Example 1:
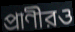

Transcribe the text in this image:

প্রাণীরও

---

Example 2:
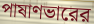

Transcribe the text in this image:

পাষাণভারের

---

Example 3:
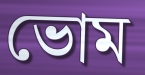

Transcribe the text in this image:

ভোম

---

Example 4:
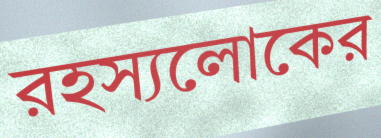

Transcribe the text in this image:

রহস্যলোকের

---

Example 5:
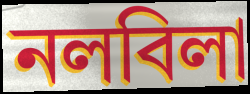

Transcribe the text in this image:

নলবিলা